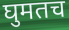
घुमतच